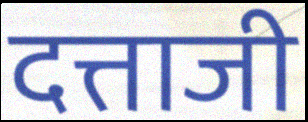
दत्ताजी